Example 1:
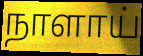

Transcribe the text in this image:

நாளாய்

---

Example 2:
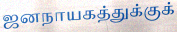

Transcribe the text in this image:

ஜனநாயகத்துக்குக்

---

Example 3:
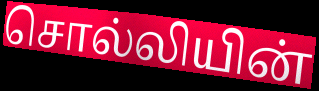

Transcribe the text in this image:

சொல்லியின்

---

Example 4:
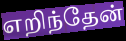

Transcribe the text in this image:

எறிந்தேன்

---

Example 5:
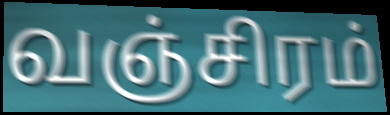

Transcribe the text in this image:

வஞ்சிரம்